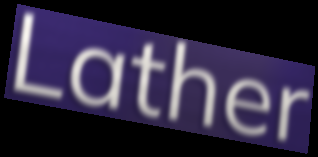
Lather